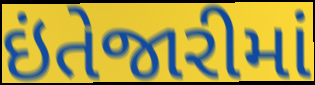
ઇંતેજારીમાં